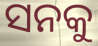
ସନକୁ